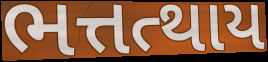
ભત્તત્થાય